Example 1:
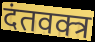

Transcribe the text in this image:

दंतवक्त्र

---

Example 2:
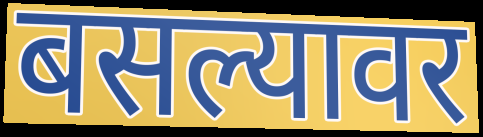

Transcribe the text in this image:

बसल्यावर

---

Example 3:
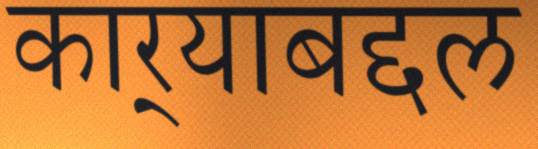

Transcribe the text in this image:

कार्याबद्दल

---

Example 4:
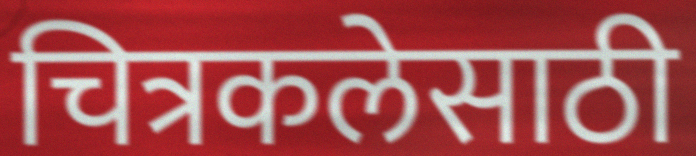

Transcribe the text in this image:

चित्रकलेसाठी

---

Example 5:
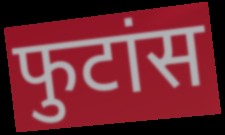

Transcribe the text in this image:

फुटांस